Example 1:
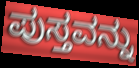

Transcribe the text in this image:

ಪುಸ್ತವನ್ನು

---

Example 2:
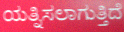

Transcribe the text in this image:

ಯತ್ನಿಸಲಾಗುತ್ತಿದೆ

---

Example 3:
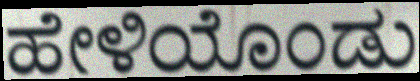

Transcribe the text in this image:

ಹೇಳಿಯೊಂಡು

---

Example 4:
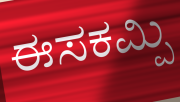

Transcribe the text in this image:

ಈಸಕಮ್ಪಿ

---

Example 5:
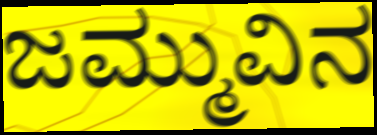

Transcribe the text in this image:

ಜಮ್ಮುವಿನ